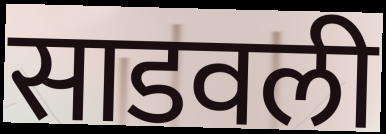
साडवली